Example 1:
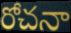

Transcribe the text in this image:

రోచనా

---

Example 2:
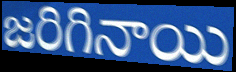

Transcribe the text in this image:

జరిగినాయి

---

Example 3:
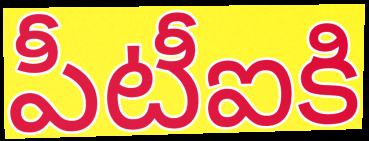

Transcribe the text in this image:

పీటీఐకి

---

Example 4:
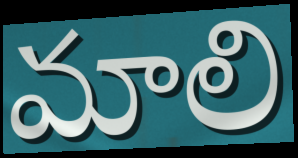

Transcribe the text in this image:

మాలి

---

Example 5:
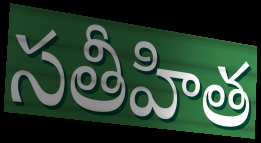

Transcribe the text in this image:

సతీహిత